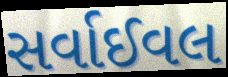
સર્વાઈવલ